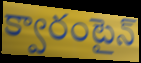
క్వారంటైన్